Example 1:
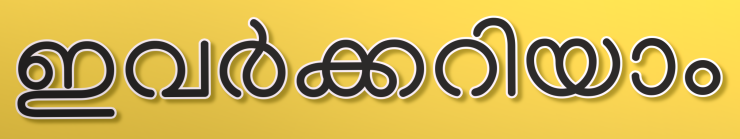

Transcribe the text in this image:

ഇവർക്കറിയാം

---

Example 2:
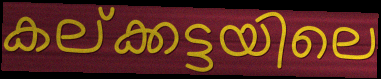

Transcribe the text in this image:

കല്ക്കട്ടയിലെ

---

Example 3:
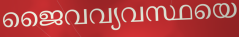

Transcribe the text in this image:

ജൈവവ്യവസ്ഥയെ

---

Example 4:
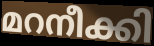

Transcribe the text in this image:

മറനീക്കി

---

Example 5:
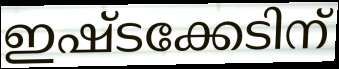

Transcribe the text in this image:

ഇഷ്ടക്കേടിന്